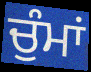
ਚੁੰਮਾਂ